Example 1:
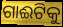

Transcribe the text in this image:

ଗାଈଟିକୁ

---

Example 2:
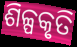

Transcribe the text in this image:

ଶିଳ୍ପକୃତି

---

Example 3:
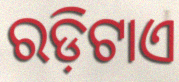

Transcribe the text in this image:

ରଡ଼ିଟାଏ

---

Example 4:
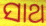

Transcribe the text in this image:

ସାଥ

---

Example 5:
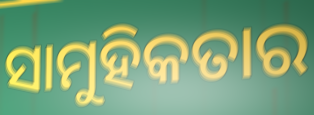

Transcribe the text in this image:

ସାମୁହିକତାର